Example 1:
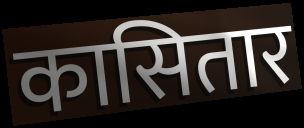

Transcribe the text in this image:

कासितार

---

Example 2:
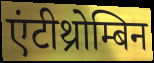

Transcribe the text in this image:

एंटीथ्रोम्बिन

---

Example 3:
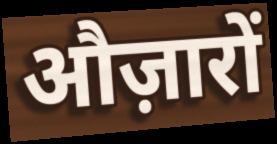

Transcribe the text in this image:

औज़ारों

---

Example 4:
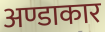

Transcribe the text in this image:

अण्डाकार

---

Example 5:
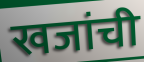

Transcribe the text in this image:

खजांची